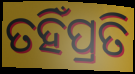
ତହିଁପ୍ରତି